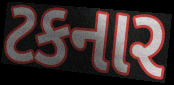
ટકનાર